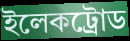
ইলেকট্রোড